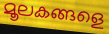
മൂലകങ്ങളെ